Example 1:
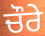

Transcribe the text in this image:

ਚੌਰੇ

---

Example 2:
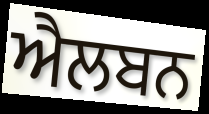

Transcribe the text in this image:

ਐਲਬਨ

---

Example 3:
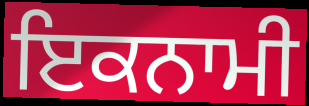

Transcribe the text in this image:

ਇਕਨਾਮੀ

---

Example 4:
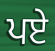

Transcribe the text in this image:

ਪਏ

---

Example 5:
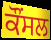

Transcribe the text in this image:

ਕੌਂਸਲ